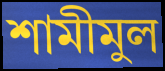
শামীমুল